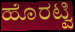
ಹೊರಟ್ವಿ